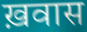
ख़वास